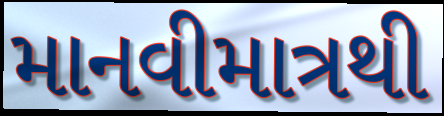
માનવીમાત્રથી